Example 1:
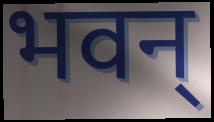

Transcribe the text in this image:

भवन्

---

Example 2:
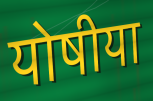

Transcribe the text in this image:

योषीया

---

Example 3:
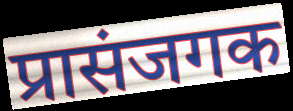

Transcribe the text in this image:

प्रासंजगक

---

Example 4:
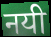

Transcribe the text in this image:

नयी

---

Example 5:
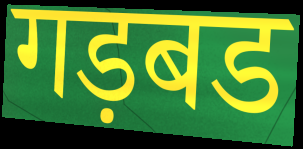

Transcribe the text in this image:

गड़बड